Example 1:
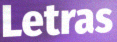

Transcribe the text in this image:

Letras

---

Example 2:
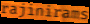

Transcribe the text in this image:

rajinirams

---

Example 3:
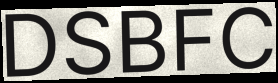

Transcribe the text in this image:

DSBFC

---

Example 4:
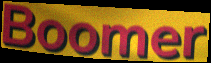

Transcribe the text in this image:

Boomer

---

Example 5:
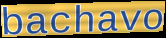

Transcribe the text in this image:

bachavo